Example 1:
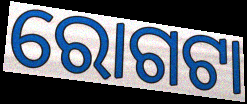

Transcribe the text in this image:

ରୋଗଟା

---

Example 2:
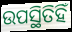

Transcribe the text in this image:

ଉପସ୍ଥିତିହିଁ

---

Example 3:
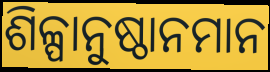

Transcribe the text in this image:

ଶିଳ୍ପାନୁଷ୍ଠାନମାନ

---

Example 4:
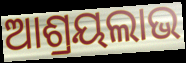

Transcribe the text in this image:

ଆଶ୍ରୟଲାଭ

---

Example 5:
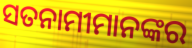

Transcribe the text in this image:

ସତନାମୀମାନଙ୍କର